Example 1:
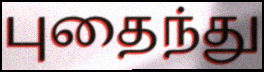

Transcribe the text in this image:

புதைந்து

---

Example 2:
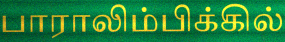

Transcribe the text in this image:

பாராலிம்பிக்கில்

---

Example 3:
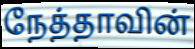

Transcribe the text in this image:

நேத்தாவின்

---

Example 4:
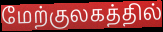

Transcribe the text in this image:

மேற்குலகத்தில்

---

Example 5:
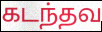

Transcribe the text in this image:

கடந்தவ